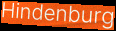
Hindenburg